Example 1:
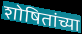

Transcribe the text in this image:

शोषितांच्या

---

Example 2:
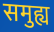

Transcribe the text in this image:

समुह्य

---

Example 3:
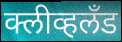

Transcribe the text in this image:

क्लीव्हलँड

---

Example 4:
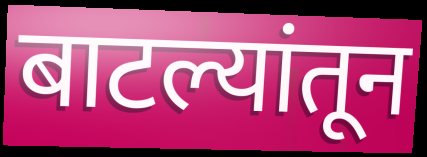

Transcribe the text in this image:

बाटल्यांतून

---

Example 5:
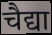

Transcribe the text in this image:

चैद्या